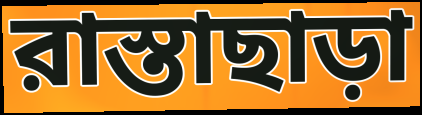
রাস্তাছাড়া